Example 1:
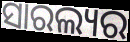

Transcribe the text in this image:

ସାରଲ୍ୟର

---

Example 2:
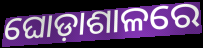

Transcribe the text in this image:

ଘୋଡ଼ାଶାଳରେ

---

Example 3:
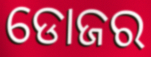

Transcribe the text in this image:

ଡୋଜର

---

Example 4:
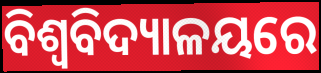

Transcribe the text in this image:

ବିଶ୍ବବିଦ୍ୟାଳୟରେ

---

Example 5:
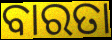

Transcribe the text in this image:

ବାରତା